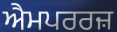
ਐਮਪਰਰਜ਼